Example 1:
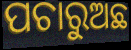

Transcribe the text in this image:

ପଚାରୁଅଛ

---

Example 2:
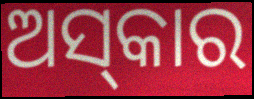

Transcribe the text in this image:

ଅସ୍‌କାର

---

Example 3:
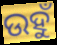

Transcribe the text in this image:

ଉହୁଁ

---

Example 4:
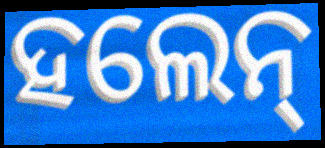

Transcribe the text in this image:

ହଲେନ୍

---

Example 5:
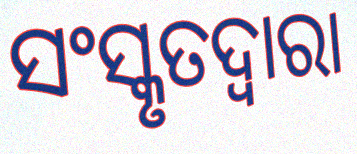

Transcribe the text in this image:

ସଂସ୍କୃତଦ୍ୱାରା